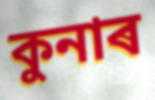
কুনাৰ